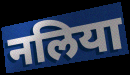
नलिया